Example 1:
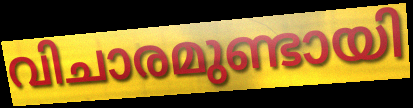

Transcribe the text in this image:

വിചാരമുണ്ടായി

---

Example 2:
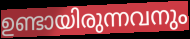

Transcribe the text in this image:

ഉണ്ടായിരുന്നവനും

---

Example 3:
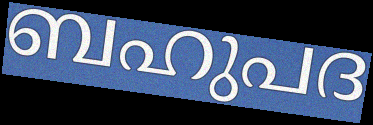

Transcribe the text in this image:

ബഹുപദ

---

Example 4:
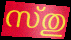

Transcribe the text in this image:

സ്‌തു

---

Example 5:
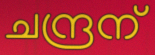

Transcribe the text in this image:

ചന്ദ്രന്